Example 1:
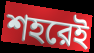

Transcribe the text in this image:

শহরেই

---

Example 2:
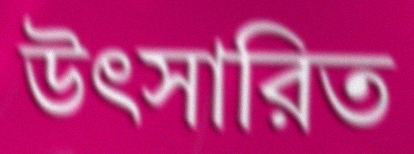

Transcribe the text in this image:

উৎসারিত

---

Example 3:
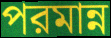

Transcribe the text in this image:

পরমান্ন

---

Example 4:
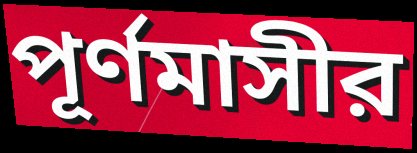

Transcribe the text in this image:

পূর্ণমাসীর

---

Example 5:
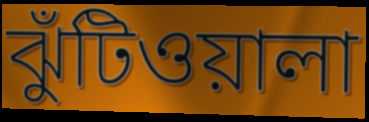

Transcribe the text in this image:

ঝুঁটিওয়ালা